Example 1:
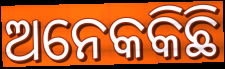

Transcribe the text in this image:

ଅନେକକିଛି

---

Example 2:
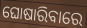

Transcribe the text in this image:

ଘୋଷାରିବାରେ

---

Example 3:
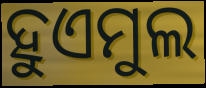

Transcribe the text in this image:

ହୁଏମୁଲ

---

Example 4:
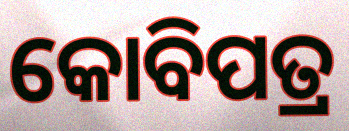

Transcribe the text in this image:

କୋବିପତ୍ର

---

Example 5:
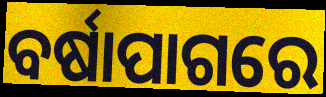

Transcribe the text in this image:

ବର୍ଷାପାଗରେ